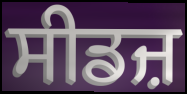
ਸੀਡਜ਼